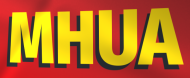
MHUA